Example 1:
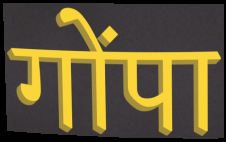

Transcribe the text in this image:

गोंपा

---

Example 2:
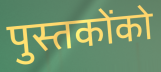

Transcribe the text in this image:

पुस्तकोंको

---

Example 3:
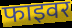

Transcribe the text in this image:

फाइवर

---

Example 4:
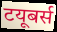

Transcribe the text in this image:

टयूबर्स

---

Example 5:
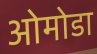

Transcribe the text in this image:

ओमोडा